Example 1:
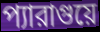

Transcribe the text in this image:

প্যারাগুয়ে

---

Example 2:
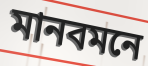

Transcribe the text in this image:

মানবমনে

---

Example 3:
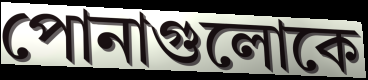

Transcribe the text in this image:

পোনাগুলোকে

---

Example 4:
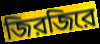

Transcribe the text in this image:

জিরজিরে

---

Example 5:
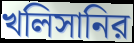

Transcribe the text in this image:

খলিসানির